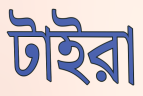
টাইরা